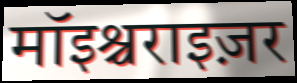
मॉइश्चराइज़र